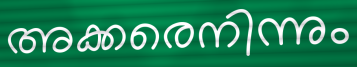
അക്കരെനിന്നും